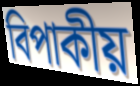
বিপাকীয়